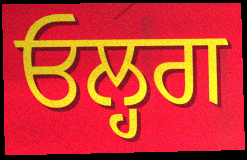
ਓਲ੍ਹਗ